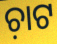
ଚ଼ାଟ